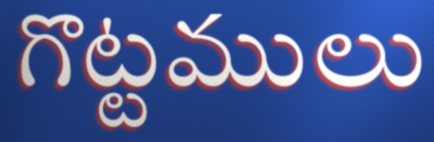
గొట్టములు